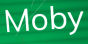
Moby